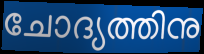
ചോദ്യത്തിനു